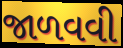
જાળવવી